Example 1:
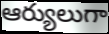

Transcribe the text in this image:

ఆర్యులుగా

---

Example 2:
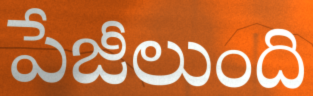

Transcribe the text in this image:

పేజీలుంది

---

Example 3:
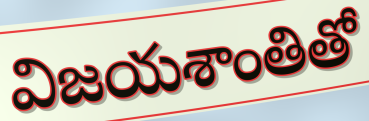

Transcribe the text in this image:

విజయశాంతితో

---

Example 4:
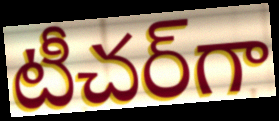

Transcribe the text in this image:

టీచర్‌గా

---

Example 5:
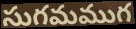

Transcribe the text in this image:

సుగమముగ